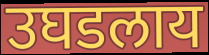
उघडलाय